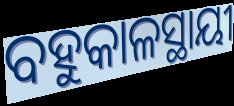
ବହୁକାଳସ୍ଥାୟୀ